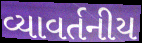
વ્યાવર્તનીય